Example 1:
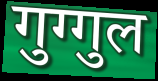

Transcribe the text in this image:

गुग्‍गुल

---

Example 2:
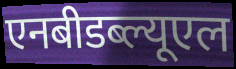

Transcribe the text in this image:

एनबीडब्ल्यूएल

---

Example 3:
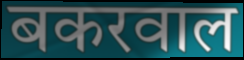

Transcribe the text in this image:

बकरवाल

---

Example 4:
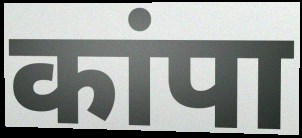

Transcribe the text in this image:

कांपा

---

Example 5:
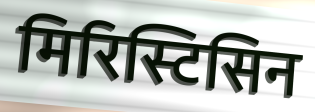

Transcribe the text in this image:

मिरिस्टिसिन